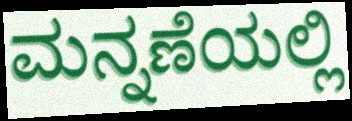
ಮನ್ನಣೆಯಲ್ಲಿ